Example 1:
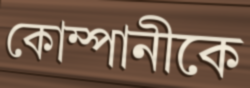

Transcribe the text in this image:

কোম্পানীকে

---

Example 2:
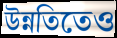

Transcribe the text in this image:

উন্নতিতেও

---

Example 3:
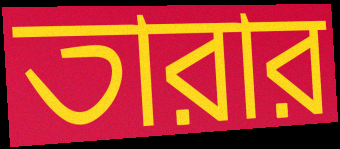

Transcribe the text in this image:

তারার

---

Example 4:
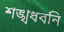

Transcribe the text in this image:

শঙ্খধবনি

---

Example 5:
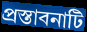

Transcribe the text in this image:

প্রস্তাবনাটি